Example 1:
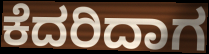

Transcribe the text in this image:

ಕೆದರಿದಾಗ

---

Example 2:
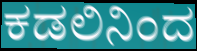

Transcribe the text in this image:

ಕಡಲಿನಿಂದ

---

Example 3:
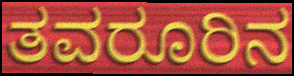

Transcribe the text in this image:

ತವರೂರಿನ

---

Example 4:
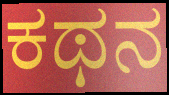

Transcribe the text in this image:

ಕಥನ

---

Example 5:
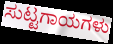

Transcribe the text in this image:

ಸುಟ್ಟಗಾಯಗಳು